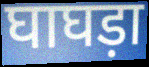
घाघड़ा